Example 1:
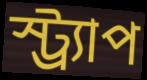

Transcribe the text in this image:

স্ট্র্যাপ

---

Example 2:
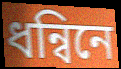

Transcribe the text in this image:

ধন্বিনে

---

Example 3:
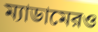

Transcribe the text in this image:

ম্যাডামেরও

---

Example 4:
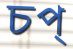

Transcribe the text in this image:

চপ্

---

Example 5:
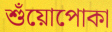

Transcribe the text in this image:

শুঁয়োপোকা